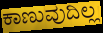
ಕಾಣುವುದಿಲ್ಲ